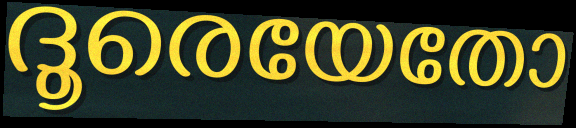
ദൂരെയേതോ